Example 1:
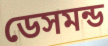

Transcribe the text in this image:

ডেসমন্ড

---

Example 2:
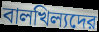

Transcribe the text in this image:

বালখিল্যদের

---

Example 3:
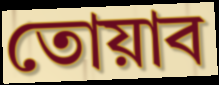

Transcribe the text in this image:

তোয়াব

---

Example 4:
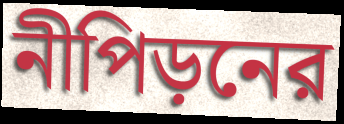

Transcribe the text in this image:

নীপিড়নের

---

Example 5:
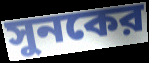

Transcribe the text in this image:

সুনকের